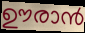
ഊരാൻ